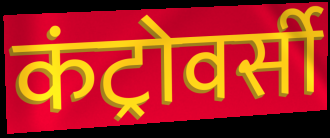
कंट्रोवर्सी